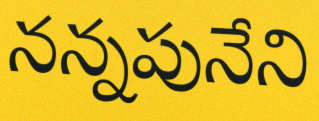
నన్నపునేని